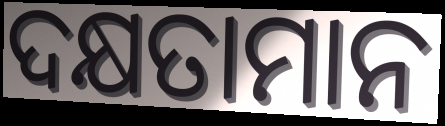
ଦକ୍ଷତାମାନ